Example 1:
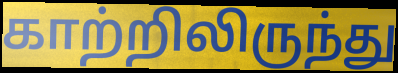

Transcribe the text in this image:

காற்றிலிருந்து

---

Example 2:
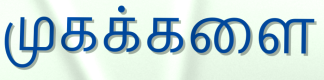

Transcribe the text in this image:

முகக்களை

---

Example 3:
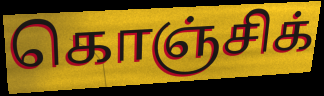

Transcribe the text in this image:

கொஞ்சிக்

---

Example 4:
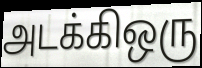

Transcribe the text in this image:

அடக்கிஒரு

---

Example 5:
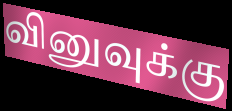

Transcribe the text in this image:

வினுவுக்கு